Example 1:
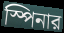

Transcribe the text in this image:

স্পিনার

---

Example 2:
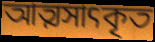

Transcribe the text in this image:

আত্মসাৎকৃত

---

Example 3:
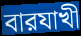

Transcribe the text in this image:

বারযাখী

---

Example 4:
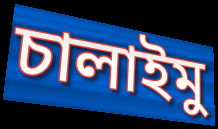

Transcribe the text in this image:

চালাইমু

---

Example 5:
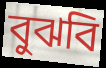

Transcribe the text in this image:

বুঝবি